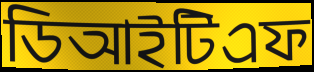
ডিআইটিএফ